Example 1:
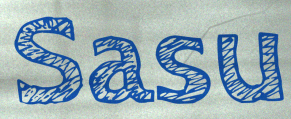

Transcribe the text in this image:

Sasu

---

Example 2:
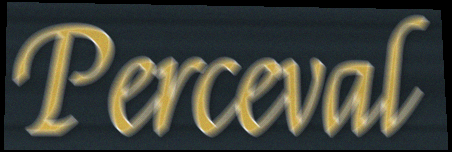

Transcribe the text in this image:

Perceval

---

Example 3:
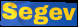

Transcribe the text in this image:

Segev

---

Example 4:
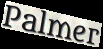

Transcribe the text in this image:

Palmer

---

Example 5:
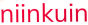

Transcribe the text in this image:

niinkuin